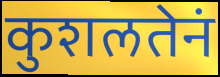
कुशलतेनं